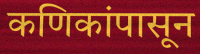
कणिकांपासून